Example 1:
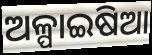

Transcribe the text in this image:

ଅଳ୍ପାଇଷିଆ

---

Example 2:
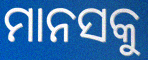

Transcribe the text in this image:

ମାନସକୁ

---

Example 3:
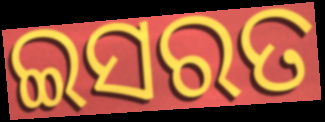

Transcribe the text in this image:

ଇସରତ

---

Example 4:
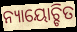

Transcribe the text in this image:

ନ୍ୟାୟୋଚ୍ଚିତ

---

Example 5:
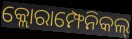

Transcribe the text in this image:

କ୍ଲୋରାମ୍ଫେନିକଲ୍